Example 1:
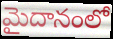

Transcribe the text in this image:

మైదానంలో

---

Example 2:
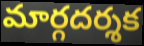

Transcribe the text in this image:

మార్గదర్శక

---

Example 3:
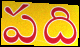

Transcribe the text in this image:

పది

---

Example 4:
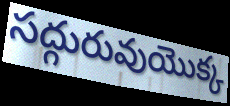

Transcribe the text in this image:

సద్గురువుయొక్క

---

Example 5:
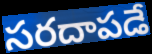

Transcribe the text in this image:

సరదాపడే